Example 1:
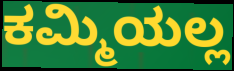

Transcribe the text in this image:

ಕಮ್ಮಿಯಲ್ಲ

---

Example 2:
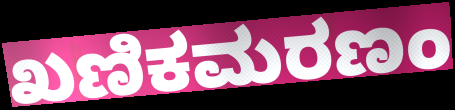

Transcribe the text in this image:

ಖಣಿಕಮರಣಂ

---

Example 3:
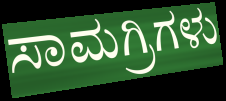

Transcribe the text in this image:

ಸಾಮಗ್ರಿಗಳು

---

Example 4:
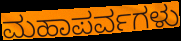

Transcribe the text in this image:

ಮಹಾಪರ್ವಗಳು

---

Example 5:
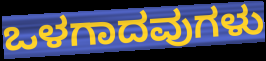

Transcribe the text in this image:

ಒಳಗಾದವುಗಳು